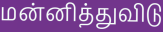
மன்னித்துவிடு